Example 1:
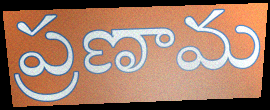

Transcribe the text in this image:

ప్రణామ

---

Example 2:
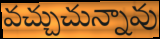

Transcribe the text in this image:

వచ్చుచున్నావు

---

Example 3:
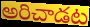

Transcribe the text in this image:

అరిచాడట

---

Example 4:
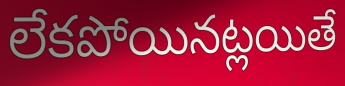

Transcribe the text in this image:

లేకపోయినట్లయితే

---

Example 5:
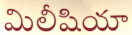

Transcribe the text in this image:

మిలీషియా